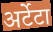
अर्टेटा